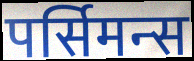
पर्सिमन्स